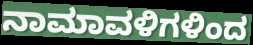
ನಾಮಾವಳಿಗಳಿಂದ